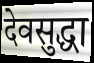
देवसुद्धा